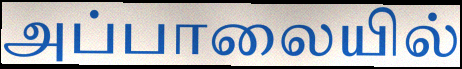
அப்பாலையில்